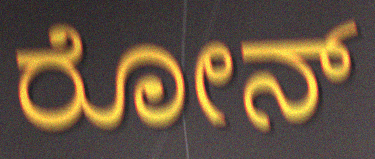
ರೋನ್